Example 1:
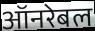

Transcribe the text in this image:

ऑनरेबल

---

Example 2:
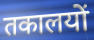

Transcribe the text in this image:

तकालयों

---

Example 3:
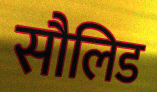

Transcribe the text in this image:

सौलिड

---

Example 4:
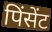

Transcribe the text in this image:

पिंसेंट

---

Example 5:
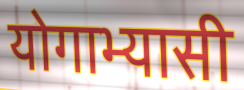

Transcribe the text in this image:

योगाभ्यासी